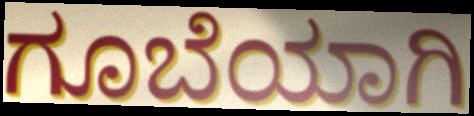
ಗೂಬೆಯಾಗಿ